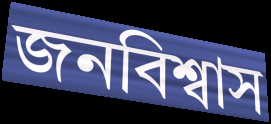
জনবিশ্বাস